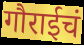
गौराईचं